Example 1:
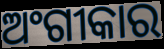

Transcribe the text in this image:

ଅଂଗୀକାର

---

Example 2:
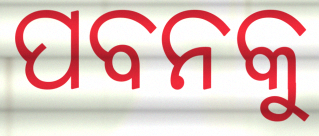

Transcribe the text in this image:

ପବନକୁ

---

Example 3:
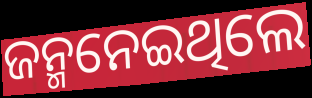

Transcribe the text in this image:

ଜନ୍ମନେଇଥିଲେ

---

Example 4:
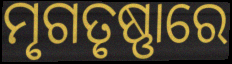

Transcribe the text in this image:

ମୃଗତୃଷ୍ଣାରେ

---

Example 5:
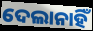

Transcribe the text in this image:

ଦେଲାନାହିଁ